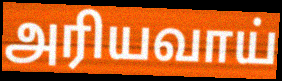
அரியவாய்